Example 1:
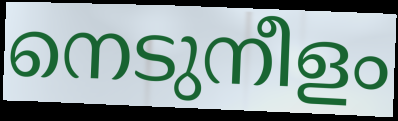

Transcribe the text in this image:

നെടുനീളം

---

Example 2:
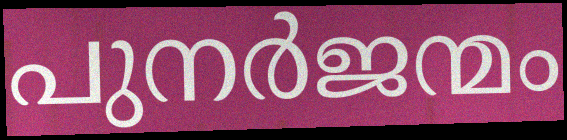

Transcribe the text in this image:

പുനർജന്മം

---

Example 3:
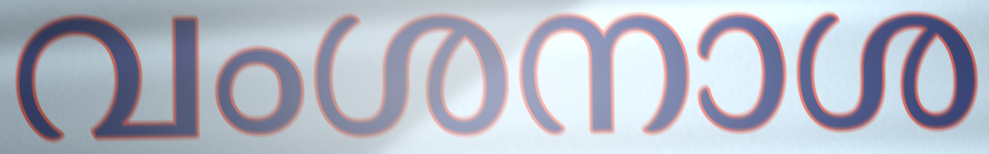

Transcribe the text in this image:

വംശനാശ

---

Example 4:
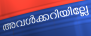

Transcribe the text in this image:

അവൾക്കറിയില്ലേ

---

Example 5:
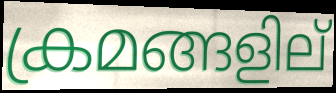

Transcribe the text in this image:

ക്രമങ്ങളില്